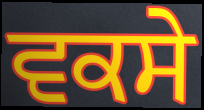
ਵਕਸੇ